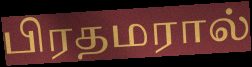
பிரதமரால்